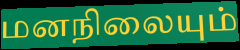
மனநிலையும்